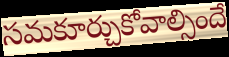
సమకూర్చుకోవాల్సిందే